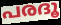
പരദൂ